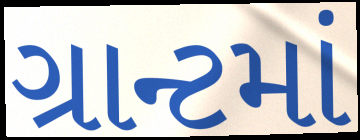
ગ્રાન્ટમાં